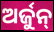
ଅର୍ଜୁନ୍